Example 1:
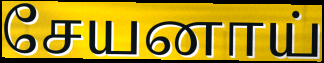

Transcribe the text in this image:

சேயனாய்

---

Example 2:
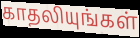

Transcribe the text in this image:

காதலியுங்கள்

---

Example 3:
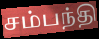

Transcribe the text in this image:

சம்பந்தி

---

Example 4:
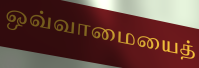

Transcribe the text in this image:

ஒவ்வாமையைத்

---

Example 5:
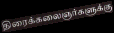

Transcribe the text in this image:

திரைக்கலைஞர்களுக்கு